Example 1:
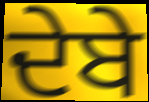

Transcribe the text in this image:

ਦੇਬੇ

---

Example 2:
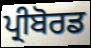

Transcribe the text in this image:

ਪ੍ਰੀਬੋਰਡ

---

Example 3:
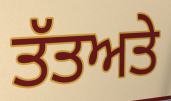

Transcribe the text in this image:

ਤੱਤਅਤੇ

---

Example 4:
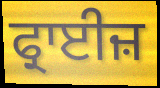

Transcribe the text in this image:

ਫ੍ਰਾਈਜ਼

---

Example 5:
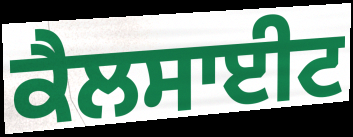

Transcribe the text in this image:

ਕੈਲਸਾਈਟ